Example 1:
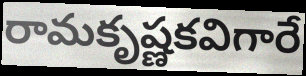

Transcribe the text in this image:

రామకృష్ణకవిగారే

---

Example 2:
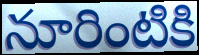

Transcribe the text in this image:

నూరింటికి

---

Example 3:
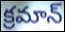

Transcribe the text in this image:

క్రమాన్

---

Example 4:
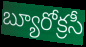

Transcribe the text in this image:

బ్యూరోక్రసీ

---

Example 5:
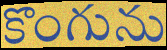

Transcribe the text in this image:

కొంగును